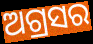
ଅଗ୍ରସର